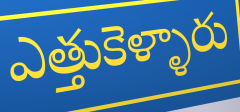
ఎత్తుకెళ్ళారు